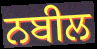
ਨਬੀਲ